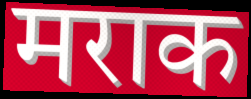
मराक